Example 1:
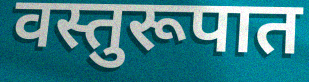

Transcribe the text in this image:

वस्तुरूपात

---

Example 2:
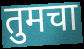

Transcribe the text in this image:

तुमचा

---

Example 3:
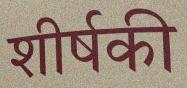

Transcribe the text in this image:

शीर्षकी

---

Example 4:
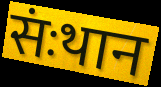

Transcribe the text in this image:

संःथान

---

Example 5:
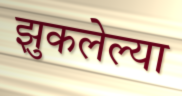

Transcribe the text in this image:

झुकलेल्या